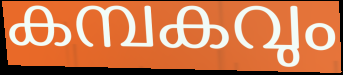
കമ്പകവും